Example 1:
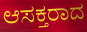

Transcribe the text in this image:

ಆಸಕ್ತರಾದ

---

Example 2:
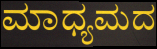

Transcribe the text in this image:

ಮಾಧ್ಯಮದ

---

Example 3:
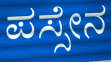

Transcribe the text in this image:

ಪಸ್ಸೇನ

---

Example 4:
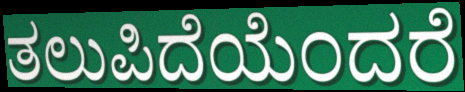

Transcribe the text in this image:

ತಲುಪಿದೆಯೆಂದರೆ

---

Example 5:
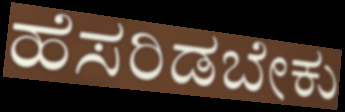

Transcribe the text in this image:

ಹೆಸರಿಡಬೇಕು